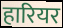
हारियर